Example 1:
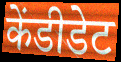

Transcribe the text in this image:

केंडीडेट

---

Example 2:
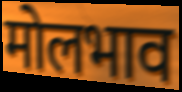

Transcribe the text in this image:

मोलभाव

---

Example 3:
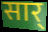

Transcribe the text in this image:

सार्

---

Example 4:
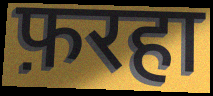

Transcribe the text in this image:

फ़रहा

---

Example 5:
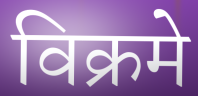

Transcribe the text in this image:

विक्रमे